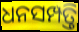
ଧନସମ୍ପତ୍ତି